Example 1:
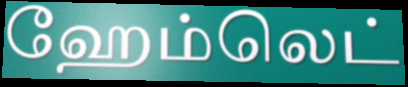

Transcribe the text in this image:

ஹேம்லெட்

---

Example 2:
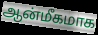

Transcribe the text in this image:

ஆன்மீகமாக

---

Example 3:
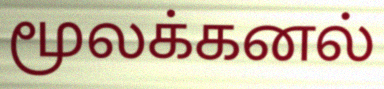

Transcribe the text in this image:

மூலக்கனல்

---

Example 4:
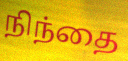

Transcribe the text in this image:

நிந்தை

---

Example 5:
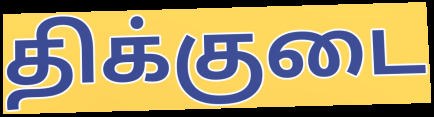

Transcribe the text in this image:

திக்குடை